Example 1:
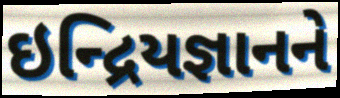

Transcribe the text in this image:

ઇન્દ્રિયજ્ઞાનને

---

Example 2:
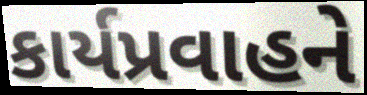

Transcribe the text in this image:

કાર્યપ્રવાહને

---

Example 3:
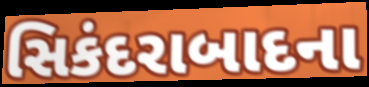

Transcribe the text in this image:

સિકંદરાબાદના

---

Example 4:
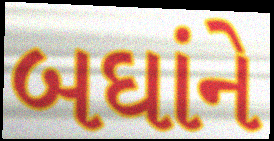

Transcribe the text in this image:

બઘાંને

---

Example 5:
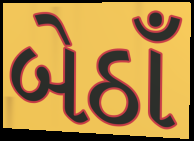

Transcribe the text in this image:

બેઠાઁ